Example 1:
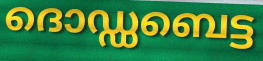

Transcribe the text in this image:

ദൊഡ്ഡബെട്ട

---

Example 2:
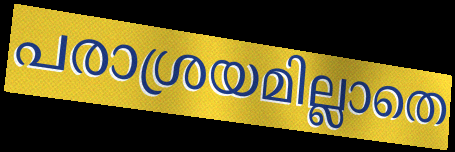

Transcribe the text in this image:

പരാശ്രയമില്ലാതെ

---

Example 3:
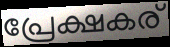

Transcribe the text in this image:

പ്രേക്ഷകര്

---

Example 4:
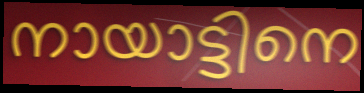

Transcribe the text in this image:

നായാട്ടിനെ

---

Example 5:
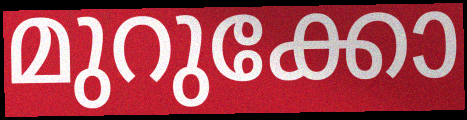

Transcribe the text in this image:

മുറുക്കോ